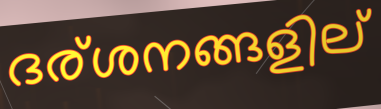
ദര്ശനങ്ങളില്